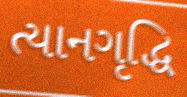
ત્યાનગૃદ્ધિ